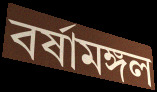
বর্ষামঙ্গল